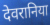
देवरानिया